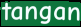
tangan